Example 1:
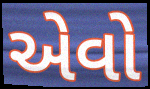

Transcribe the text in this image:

એેવો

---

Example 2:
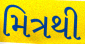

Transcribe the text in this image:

મિત્રથી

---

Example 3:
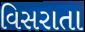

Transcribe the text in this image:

વિસરાતા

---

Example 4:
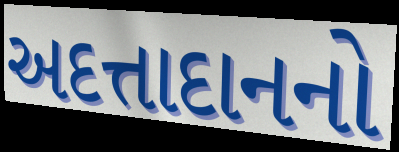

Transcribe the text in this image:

અદત્તાદાનનો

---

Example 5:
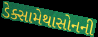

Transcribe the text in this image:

ડેક્સામેથાસોનની